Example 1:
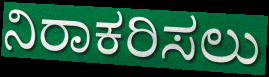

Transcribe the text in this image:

ನಿರಾಕರಿಸಲು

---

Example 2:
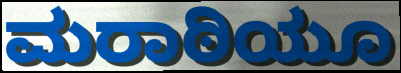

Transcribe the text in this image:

ಮರಾಠಿಯೂ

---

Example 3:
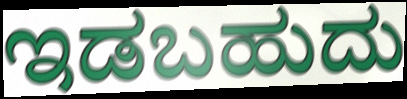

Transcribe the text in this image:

ಇಡಬಹುದು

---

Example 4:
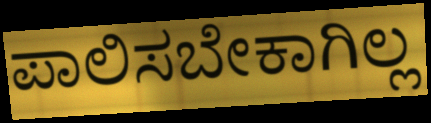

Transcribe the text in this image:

ಪಾಲಿಸಬೇಕಾಗಿಲ್ಲ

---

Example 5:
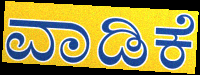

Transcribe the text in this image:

ವಾಡಿಕೆ